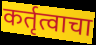
कर्तृत्वाचा